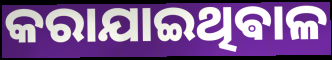
କରାଯାଇଥିଵାଳ